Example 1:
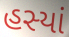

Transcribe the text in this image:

હસ્યાં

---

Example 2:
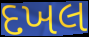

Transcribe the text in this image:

દખલ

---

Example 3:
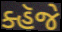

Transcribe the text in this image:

ક્હૅજે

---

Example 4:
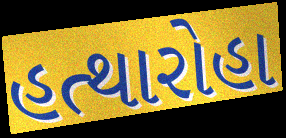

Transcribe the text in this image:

હત્થારોહા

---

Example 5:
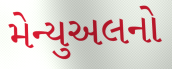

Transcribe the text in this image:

મેન્યુઅલનો